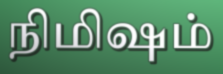
நிமிஷம்